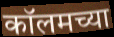
कॉलमच्या